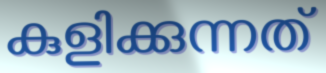
കുളിക്കുന്നത്